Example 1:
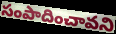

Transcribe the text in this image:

సంపాదించావని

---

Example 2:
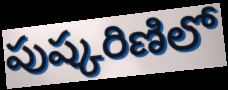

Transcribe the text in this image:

పుష్కరిణిలో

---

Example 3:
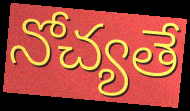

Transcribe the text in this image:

నోచ్యతే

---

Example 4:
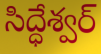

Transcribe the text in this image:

సిద్ధేశ్వర్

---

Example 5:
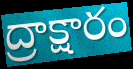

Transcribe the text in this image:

ద్రాక్షారం